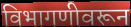
विभागणीवरून